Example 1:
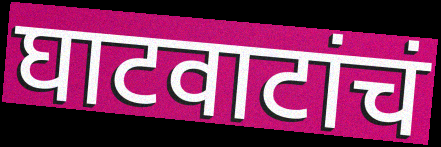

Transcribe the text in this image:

घाटवाटांचं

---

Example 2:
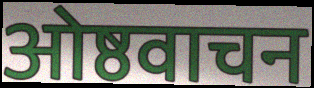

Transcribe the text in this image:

ओष्ठवाचन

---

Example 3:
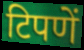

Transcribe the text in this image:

टिपणें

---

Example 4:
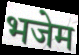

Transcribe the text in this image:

भजेम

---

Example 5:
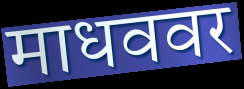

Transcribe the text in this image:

माधववर